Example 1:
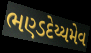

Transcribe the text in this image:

ભણ્ડદેય્યમેવ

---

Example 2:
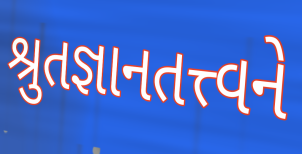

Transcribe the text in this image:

શ્રુતજ્ઞાનતત્ત્વને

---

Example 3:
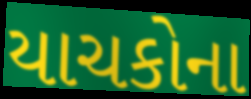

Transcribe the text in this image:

યાચકોના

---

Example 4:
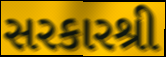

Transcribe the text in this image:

સરકારશ્રી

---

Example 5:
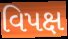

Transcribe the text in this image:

વિપક્ષ